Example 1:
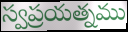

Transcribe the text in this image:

స్వప్రయత్నము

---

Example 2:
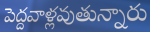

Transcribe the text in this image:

పెద్దవాళ్లవుతున్నారు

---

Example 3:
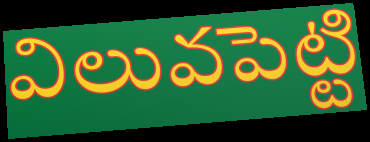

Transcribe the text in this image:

విలువపెట్టి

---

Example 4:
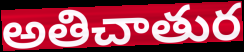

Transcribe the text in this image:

అతిచాతుర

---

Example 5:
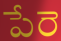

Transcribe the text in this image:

పేరె